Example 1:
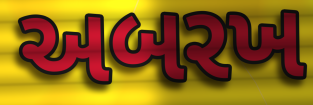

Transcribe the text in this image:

અબરખ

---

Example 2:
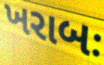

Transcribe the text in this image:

ખરાબઃ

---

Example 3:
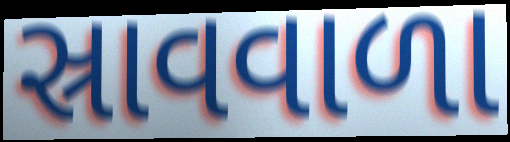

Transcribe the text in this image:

સ્રાવવાળા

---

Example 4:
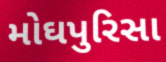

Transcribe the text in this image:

મોઘપુરિસા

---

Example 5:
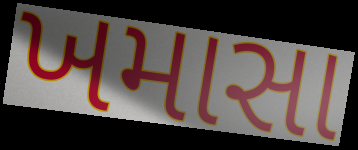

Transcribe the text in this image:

ખમાસા